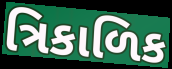
ત્રિકાળિક